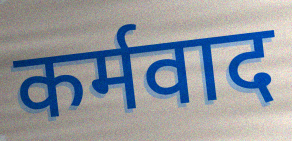
कर्मवाद